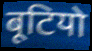
बूटियो